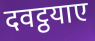
दवट्ठयाए